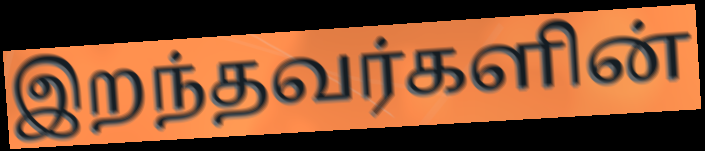
இறந்தவர்களின்